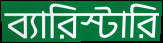
ব্যারিস্টারি